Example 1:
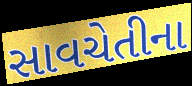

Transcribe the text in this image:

સાવચેતીના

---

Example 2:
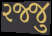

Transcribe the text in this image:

રજ્જુ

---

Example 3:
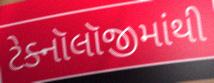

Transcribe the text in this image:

ટેક્નૉલૉજીમાંથી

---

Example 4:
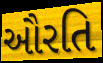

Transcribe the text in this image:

ઔરતિ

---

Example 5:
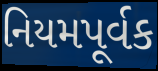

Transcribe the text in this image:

નિયમપૂર્વક